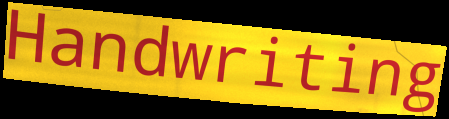
Handwriting